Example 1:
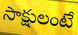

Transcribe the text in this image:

సాక్షులంటే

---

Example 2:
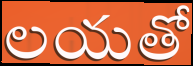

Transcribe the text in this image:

లయతో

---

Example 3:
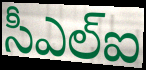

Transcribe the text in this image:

సీఎల్ఐ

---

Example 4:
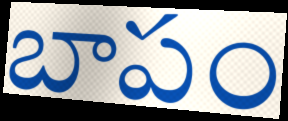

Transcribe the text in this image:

బాపం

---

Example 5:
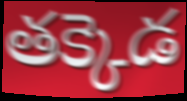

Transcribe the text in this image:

తక్కెడ